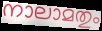
നാലാമതും